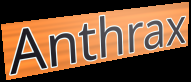
Anthrax